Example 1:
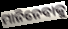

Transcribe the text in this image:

ମାନିନେବାକୁ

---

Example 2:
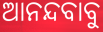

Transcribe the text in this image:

ଆନନ୍ଦବାବୁ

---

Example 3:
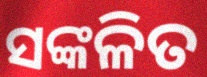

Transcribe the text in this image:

ସଙ୍କଳିତ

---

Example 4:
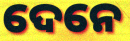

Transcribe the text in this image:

ଦେନେ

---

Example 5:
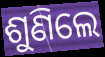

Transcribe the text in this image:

ଶୁଣିଲେ